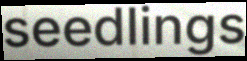
seedlings